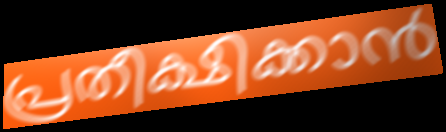
പ്രതീക്ഷിക്കാൻ